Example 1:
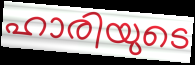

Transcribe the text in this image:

ഹാരിയുടെ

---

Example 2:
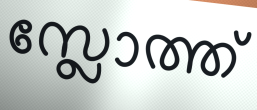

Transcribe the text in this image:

സ്ലോത്ത്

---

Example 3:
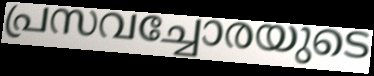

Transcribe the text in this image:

പ്രസവച്ചോരയുടെ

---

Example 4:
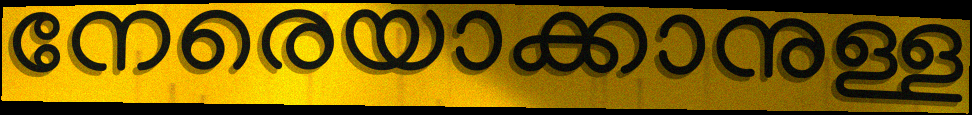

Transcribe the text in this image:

നേരെയാക്കാനുള്ള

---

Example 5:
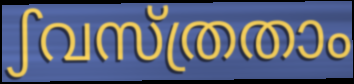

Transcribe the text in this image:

ഽവസ്ത്രതാം